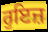
ਰੁਇਜ਼